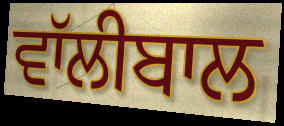
ਵਾੱਲੀਬਾਲ